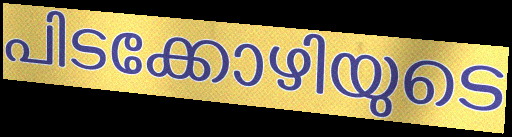
പിടക്കോഴിയുടെ